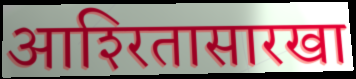
आश्रितासारखा